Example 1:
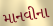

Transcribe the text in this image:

માનવીના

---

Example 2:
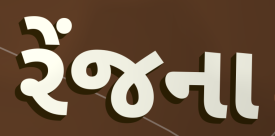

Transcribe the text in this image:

રેંજના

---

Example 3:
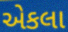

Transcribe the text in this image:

એકલા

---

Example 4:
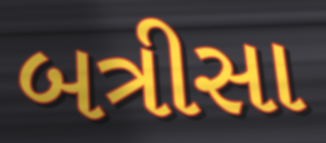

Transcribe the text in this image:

બત્રીસા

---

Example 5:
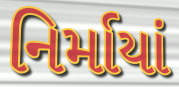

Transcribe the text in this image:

નિર્માયાં